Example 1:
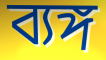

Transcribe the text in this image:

ব্যঙ্গ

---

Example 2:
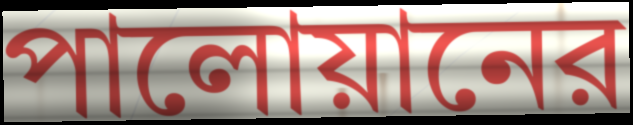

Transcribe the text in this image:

পালোয়ানের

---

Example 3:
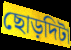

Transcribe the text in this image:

ছোড়দিটা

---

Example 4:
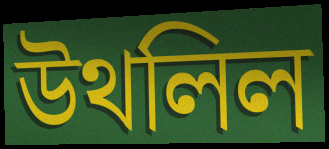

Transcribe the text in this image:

উথলিল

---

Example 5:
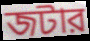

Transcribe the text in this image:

জটার